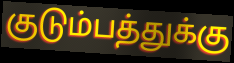
குடும்பத்துக்கு